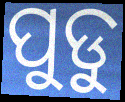
ପୁଡୁ